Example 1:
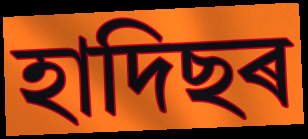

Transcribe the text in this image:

হাদিছৰ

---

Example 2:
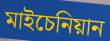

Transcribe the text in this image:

মাইচেনিয়ান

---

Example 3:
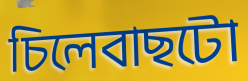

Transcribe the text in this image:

চিলেবাছটো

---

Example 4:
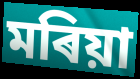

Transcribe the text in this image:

মৰিয়া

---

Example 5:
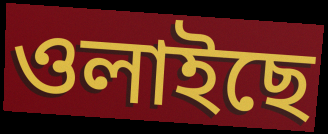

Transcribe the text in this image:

ওলাইছে